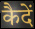
कैदें